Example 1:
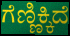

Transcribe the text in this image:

ಗೆಣ್ಣಿಕ್ಕಿದೆ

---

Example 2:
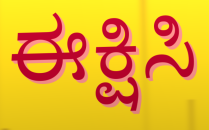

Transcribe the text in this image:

ಈಕ್ಷಿಸಿ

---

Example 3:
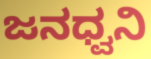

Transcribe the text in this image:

ಜನಧ್ವನಿ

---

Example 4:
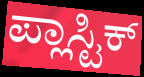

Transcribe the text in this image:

ಪ್ಲಾಸ್ಟಿಕ್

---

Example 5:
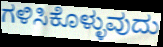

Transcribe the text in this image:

ಗಳಿಸಿಕೊಳ್ಳುವುದು